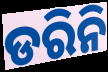
ଡରିନି